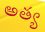
అత్య